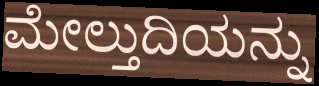
ಮೇಲ್ತುದಿಯನ್ನು